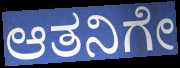
ಆತನಿಗೇ